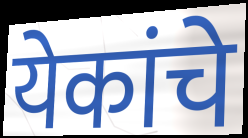
येकांचे